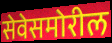
सेवेसमोरील